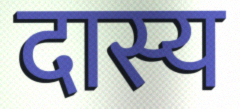
दास्य